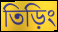
তিড়িং